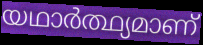
യഥാർത്ഥ്യമാണ്